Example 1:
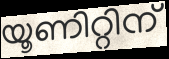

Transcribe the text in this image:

യൂണിറ്റിന്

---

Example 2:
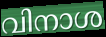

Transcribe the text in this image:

വിനാശ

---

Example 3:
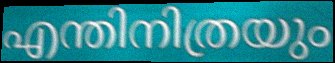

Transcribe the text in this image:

എന്തിനിത്രയും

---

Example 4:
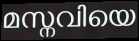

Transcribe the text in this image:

മസ്നവിയെ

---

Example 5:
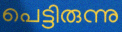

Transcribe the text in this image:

പെട്ടിരുന്നു